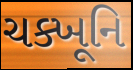
ચક્ખૂનિ